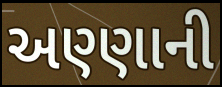
અણ્ણાની